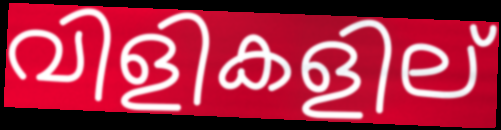
വിളികളില്